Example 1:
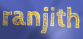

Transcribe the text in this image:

ranjith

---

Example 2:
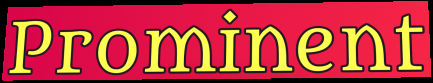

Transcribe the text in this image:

Prominent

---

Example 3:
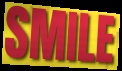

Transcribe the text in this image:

SMILE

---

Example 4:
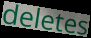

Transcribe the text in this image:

deletes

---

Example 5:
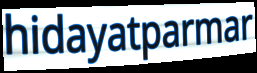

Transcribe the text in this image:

hidayatparmar